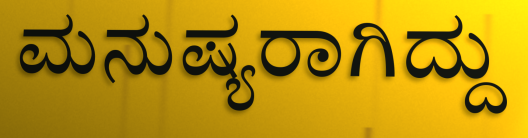
ಮನುಷ್ಯರಾಗಿದ್ದು